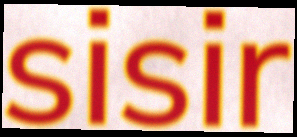
sisir